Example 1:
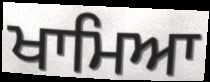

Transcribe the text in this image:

ਖਾਮਿਆ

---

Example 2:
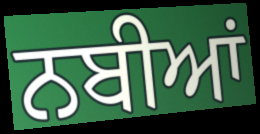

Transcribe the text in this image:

ਨਬੀਆਂ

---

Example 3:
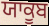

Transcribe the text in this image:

ਯਾਕੂਬ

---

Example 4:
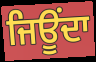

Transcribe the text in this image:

ਜਿਊਂਦਾ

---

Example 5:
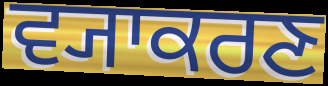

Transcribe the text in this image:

ਵ੍ਯਾਕਰਣ